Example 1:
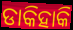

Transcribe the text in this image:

ଡାକିହାକି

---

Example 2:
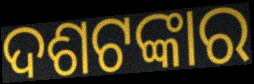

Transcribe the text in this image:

ଦଶଟଙ୍କାର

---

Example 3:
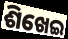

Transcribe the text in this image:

ଶିଖେଇ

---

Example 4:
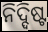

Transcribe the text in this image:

ନିଦ୍ଦିଷ୍ଟ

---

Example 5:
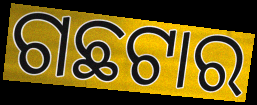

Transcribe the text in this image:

ଗଛଟାର